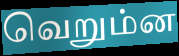
வெறும்ன